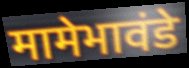
मामेभावंडे